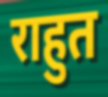
राहुत